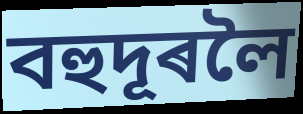
বহুদূৰলৈ